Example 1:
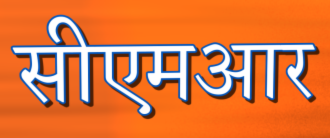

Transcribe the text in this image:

सीएमआर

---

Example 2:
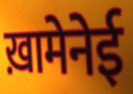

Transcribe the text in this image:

ख़ामेनेई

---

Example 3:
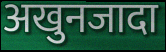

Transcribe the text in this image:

अखुनजादा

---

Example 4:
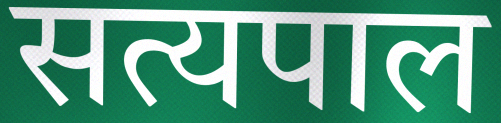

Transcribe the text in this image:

सत्यपाल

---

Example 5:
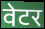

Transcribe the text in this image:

वेटर